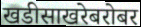
खडीसाखरेबरोबर